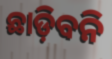
ଛାଡ଼ିବନି